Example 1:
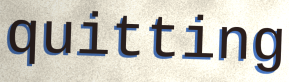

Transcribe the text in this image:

quitting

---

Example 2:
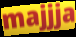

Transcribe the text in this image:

majjja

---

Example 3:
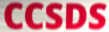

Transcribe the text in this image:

CCSDS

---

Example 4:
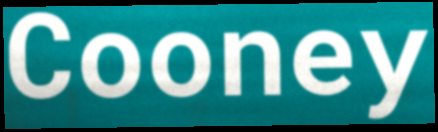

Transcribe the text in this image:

Cooney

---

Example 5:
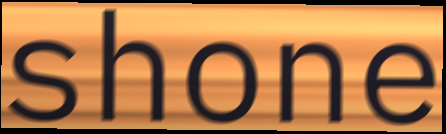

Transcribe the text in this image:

shone